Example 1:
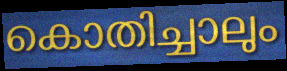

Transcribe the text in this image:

കൊതിച്ചാലും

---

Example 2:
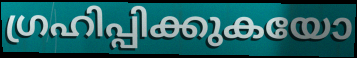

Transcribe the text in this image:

ഗ്രഹിപ്പിക്കുകയോ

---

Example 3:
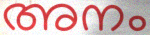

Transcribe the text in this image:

അനം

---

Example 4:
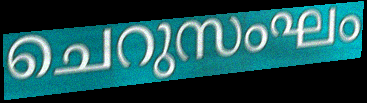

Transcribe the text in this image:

ചെറുസംഘം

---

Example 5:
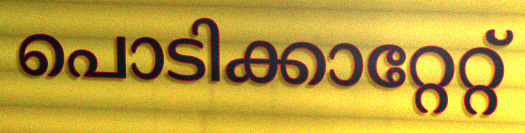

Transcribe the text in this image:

പൊടിക്കാറ്റേറ്റ്